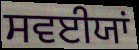
ਸਵਈਯਾਂ